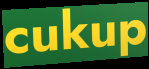
cukup